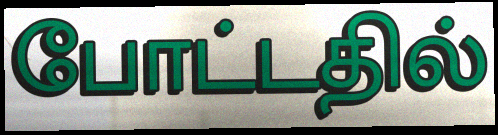
போட்டதில்